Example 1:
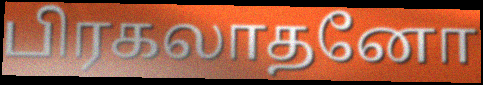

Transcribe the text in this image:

பிரகலாதனோ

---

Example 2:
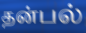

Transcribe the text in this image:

தன்பல்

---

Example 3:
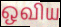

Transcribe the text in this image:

ஒவிய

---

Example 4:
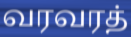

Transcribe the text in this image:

வரவரத்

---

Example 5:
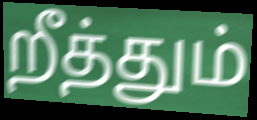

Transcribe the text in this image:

றீத்தும்